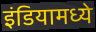
इंडियामध्ये